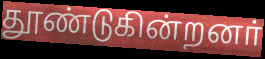
தூண்டுகின்றனர்